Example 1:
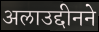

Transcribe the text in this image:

अलाउद्दीनने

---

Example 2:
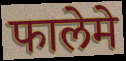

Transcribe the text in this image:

फालेमे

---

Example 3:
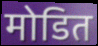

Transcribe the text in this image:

मोडित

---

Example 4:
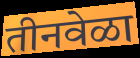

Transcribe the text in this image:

तीनवेळा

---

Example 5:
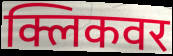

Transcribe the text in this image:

क्लिकवर